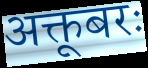
अक्तूबरः